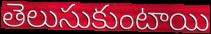
తెలుసుకుంటాయి